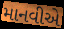
માનવીએ